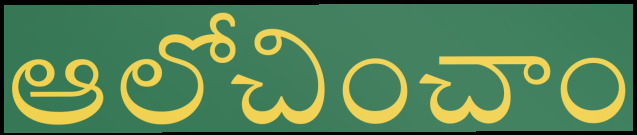
ఆలోచించాం